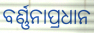
ବର୍ଣ୍ଣନାପ୍ରଧାନ